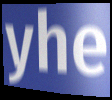
yhe